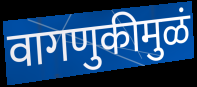
वागणुकीमुळं